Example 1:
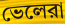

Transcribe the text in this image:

ভেলেরা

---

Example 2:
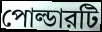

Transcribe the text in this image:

পোল্ডারটি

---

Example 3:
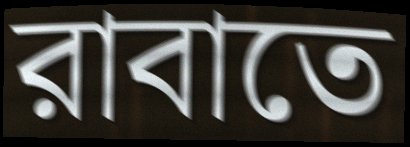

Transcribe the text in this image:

রাবাতে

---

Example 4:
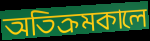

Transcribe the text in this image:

অতিক্রমকালে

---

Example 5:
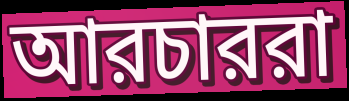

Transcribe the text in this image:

আরচাররা